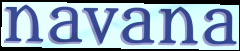
navana